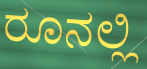
ರೂನಲ್ಲಿ